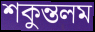
শকুন্তলম